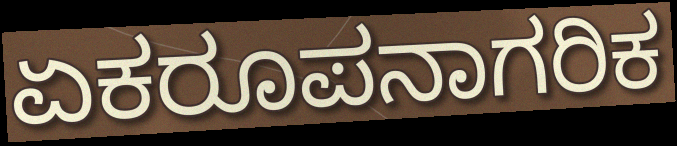
ಏಕರೂಪನಾಗರಿಕ